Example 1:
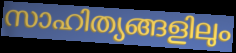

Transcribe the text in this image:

സാഹിത്യങ്ങളിലും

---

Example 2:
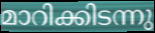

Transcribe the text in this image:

മാറിക്കിടന്നു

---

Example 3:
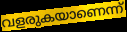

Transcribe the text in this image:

വളരുകയാണെന്ന്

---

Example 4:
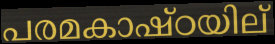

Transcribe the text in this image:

പരമകാഷ്ഠയില്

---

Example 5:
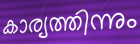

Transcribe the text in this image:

കാര്യത്തിന്നും